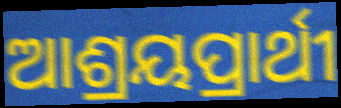
ଆଶ୍ରୟପ୍ରାର୍ଥୀ